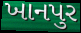
ખાનપુર